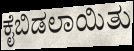
ಕೈಬಿಡಲಾಯಿತು